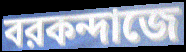
বরকন্দাজে